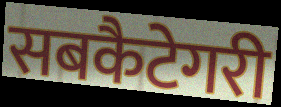
सबकैटेगरी